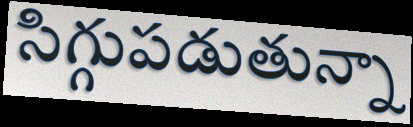
సిగ్గుపడుతున్నా